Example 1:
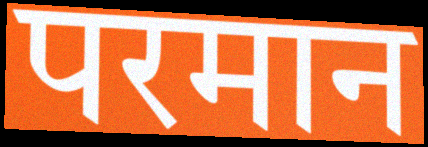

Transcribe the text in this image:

परमान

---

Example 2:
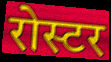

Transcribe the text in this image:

रोस्टर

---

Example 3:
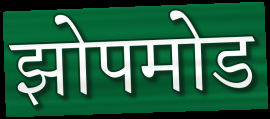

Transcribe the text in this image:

झोपमोड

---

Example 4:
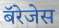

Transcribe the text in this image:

बॅरेजेस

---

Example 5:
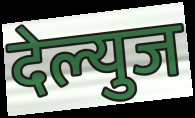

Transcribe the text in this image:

देल्युज